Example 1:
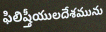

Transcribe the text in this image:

ఫిలిష్తీయులదేశమును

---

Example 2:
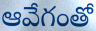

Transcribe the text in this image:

ఆవేగంతో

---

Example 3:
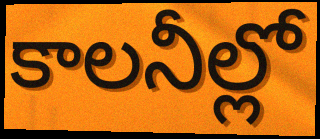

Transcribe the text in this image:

కాలనీల్లో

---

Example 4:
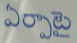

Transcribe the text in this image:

ఏర్పాటై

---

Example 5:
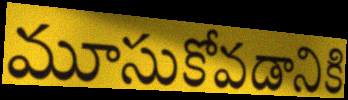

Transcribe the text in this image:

మూసుకోవడానికి